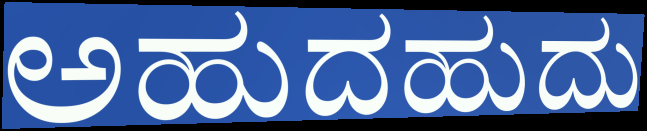
ಅಹುದಹುದು